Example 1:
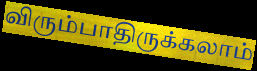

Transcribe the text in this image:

விரும்பாதிருக்கலாம்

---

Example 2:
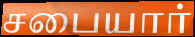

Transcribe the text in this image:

சபையார்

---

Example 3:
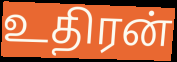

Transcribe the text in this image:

உதிரன்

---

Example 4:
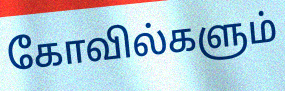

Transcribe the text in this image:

கோவில்களும்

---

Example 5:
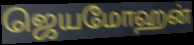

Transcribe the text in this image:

ஜெயமோஹன்